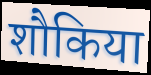
शौकिया